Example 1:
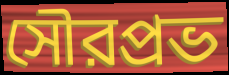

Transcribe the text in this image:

সৌরপ্রভ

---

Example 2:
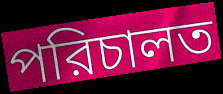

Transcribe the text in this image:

পরিচালত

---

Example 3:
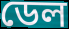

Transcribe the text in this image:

ডেল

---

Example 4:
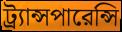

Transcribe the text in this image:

ট্র্যান্সপারেন্সি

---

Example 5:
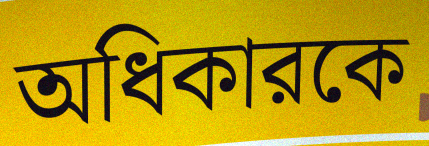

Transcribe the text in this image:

অধিকারকে